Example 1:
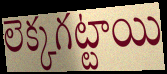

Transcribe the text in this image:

లెక్కగట్టాయి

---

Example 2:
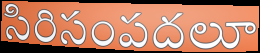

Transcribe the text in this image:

సిరిసంపదలూ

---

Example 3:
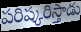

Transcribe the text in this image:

పరిష్కరిస్తాడు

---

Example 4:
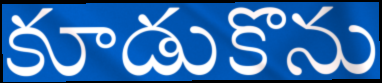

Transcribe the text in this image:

కూడుకొను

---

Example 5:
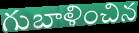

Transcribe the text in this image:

గుబాళించిన